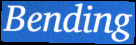
Bending